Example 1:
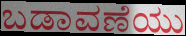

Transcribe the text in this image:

ಬಡಾವಣೆಯು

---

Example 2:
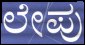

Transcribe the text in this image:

ಲೇಪು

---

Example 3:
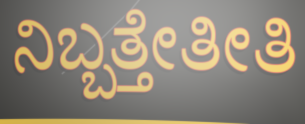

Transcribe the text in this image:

ನಿಬ್ಬತ್ತೇತೀತಿ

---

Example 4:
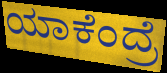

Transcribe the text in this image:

ಯಾಕೆಂದ್ರೆ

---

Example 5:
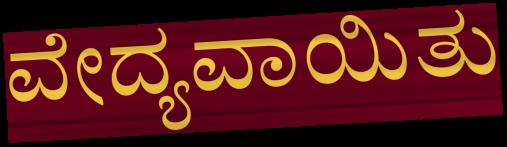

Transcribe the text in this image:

ವೇದ್ಯವಾಯಿತು